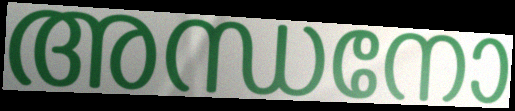
അന്ധനോ